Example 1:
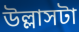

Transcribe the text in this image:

উল্লাসটা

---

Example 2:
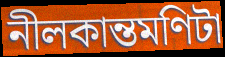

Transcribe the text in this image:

নীলকান্তমণিটা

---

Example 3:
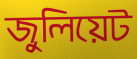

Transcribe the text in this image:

জুলিয়েট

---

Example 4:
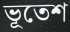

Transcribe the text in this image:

ভূতেশ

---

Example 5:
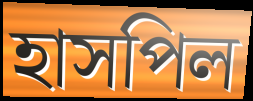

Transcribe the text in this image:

হাসপিল